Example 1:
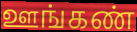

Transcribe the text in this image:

ஊங்கண்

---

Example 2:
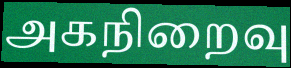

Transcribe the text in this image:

அகநிறைவு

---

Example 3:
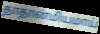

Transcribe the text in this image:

தாதான்மியமாய்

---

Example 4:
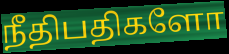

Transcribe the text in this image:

நீதிபதிகளோ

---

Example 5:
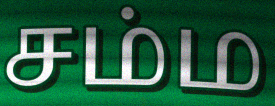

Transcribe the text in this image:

சம்ம